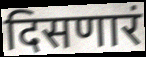
दिसणारं